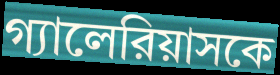
গ্যালেরিয়াসকে